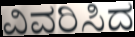
ವಿವರಿಸಿದ